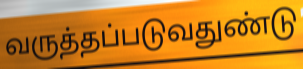
வருத்தப்படுவதுண்டு